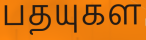
பதயுகள